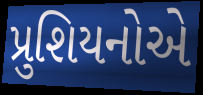
પ્રુશિયનોએ